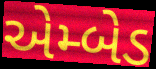
એમ્બેડ